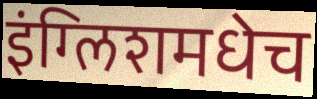
इंग्लिशमधेच